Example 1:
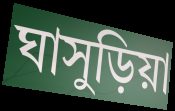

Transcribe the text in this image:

ঘাসুড়িয়া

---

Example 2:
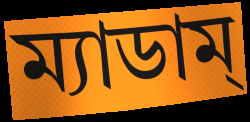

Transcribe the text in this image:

ম্যাডাম্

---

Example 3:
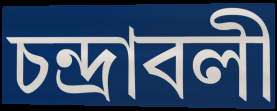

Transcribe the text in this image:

চন্দ্রাবলী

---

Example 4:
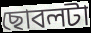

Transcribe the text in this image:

ছোবলটা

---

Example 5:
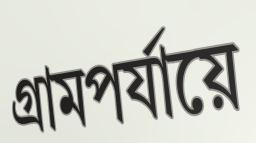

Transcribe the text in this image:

গ্রামপর্যায়ে